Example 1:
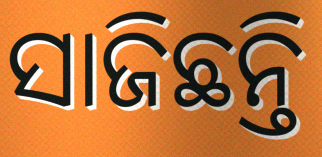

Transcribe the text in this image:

ସାଜିଛନ୍ତି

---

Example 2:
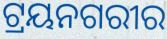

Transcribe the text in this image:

ଟ୍ରୟନଗରୀର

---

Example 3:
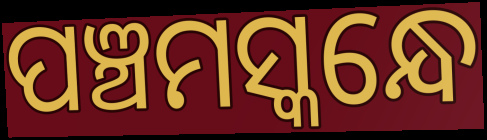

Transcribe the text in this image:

ପଞ୍ଚମସ୍କନ୍ଧେ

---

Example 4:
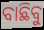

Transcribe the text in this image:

ବାଛିବୁ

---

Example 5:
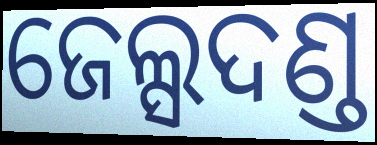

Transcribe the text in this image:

ଜେଲ୍ସଦଣ୍ଡ